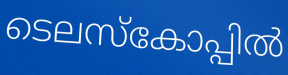
ടെലസ്കോപ്പിൽ